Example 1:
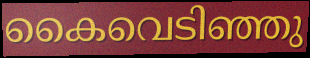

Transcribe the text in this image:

കൈവെടിഞ്ഞു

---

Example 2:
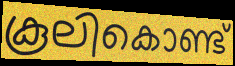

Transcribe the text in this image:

കൂലികൊണ്ട്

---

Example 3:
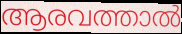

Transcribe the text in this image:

ആരവത്താൽ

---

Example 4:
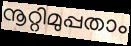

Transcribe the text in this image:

നൂറ്റിമുപ്പതാം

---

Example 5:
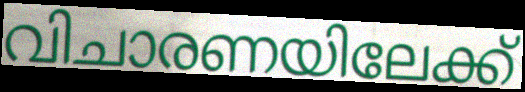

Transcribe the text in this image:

വിചാരണയിലേക്ക്